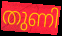
തുണി